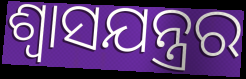
ଶ୍ୱାସଯନ୍ତ୍ରର